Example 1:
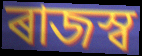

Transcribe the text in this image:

ৰাজস্ব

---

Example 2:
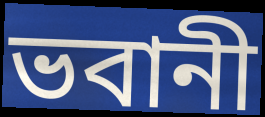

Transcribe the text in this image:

ভবানী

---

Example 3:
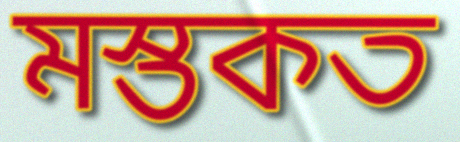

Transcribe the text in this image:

মস্তকত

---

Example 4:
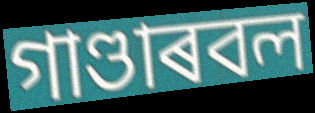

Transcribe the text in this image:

গাণ্ডাৰবল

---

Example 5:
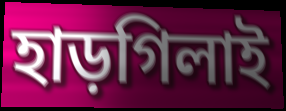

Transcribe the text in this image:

হাড়গিলাই